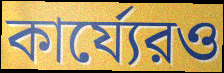
কার্য্যেরও